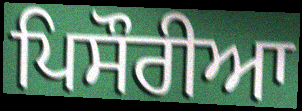
ਪਿਸੌਰੀਆ